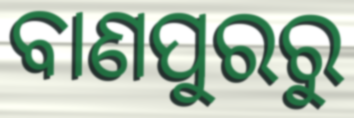
ବାଣପୁରରୁ